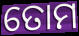
ତୋମ